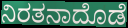
ನಿರತನಾದೊಡೆ